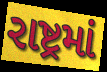
રાષ્ટ્રમાં